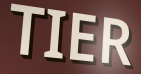
TIER